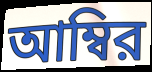
আম্বির